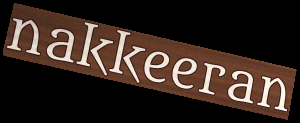
nakkeeran